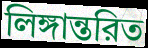
লিঙ্গান্তরিত